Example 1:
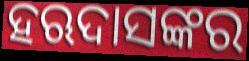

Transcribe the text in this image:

ହଋଦାସଙ୍କର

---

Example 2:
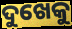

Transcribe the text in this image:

ଦୁଖେକୁ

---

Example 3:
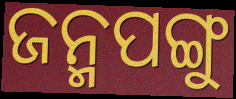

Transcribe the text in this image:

ଜନ୍ମପଙ୍ଗୁ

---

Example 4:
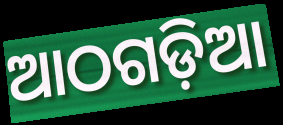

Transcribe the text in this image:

ଆଠଗଡ଼ିଆ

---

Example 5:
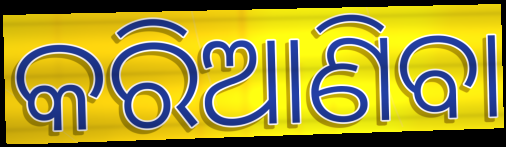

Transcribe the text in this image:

କରିଆଣିବା